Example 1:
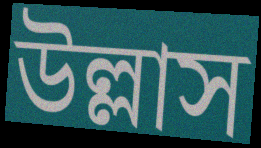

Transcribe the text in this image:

উল্লাস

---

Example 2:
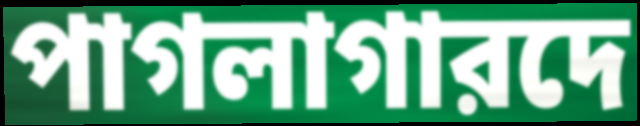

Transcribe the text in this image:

পাগলাগারদে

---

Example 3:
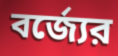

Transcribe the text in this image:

বর্জ্যের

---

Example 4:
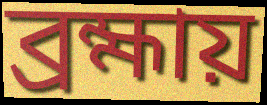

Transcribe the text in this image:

ব্রহ্মায়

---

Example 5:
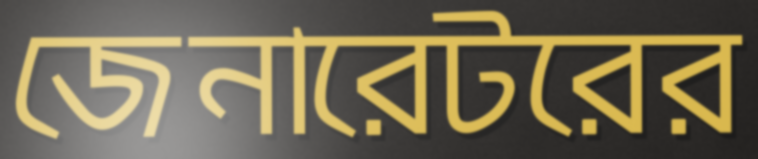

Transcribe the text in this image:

জেনারেটরের